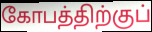
கோபத்திற்குப்